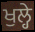
ਖੁਲ੍ਹੇ